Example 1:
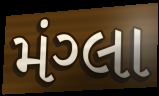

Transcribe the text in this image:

મંગ્લા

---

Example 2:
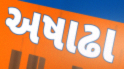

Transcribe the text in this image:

અષાઢા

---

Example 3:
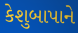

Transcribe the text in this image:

કેશુબાપાને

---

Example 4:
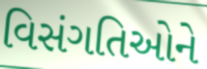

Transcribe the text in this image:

વિસંગતિઓને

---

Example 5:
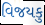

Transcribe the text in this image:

વિજયકુ